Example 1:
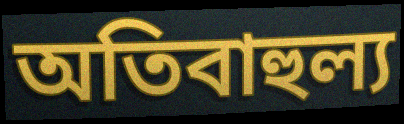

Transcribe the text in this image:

অতিবাহুল্য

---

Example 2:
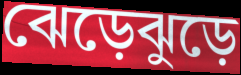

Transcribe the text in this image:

ঝেড়েঝুড়ে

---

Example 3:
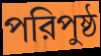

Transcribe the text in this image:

পরিপুষ্ঠ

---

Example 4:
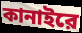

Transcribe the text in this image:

কানাইরে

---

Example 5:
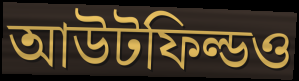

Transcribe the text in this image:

আউটফিল্ডও